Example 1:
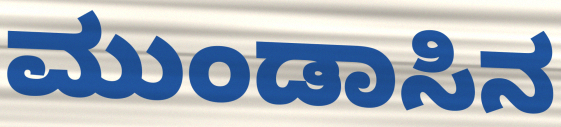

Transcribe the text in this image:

ಮುಂಡಾಸಿನ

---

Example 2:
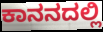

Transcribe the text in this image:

ಕಾನನದಲ್ಲಿ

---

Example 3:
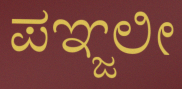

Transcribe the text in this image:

ಪಞ್ಜಲೀ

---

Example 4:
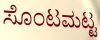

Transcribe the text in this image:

ಸೊಂಟಮಟ್ಟ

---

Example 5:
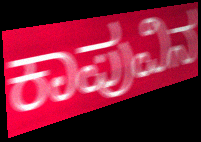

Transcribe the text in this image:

ಕಾಪುವಿನ